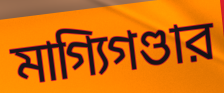
মাগ্যিগণ্ডার